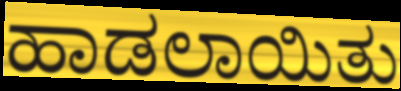
ಹಾಡಲಾಯಿತು